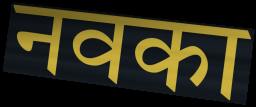
नवका